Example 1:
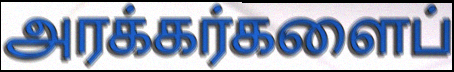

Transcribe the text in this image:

அரக்கர்களைப்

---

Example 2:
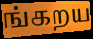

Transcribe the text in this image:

ங்கறய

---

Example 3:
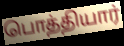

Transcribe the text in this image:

பொத்தியார்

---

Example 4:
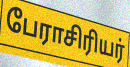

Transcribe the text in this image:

பேராசிரியர்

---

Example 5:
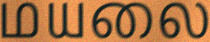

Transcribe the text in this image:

மயலை